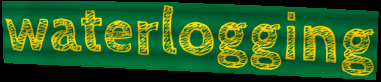
waterlogging